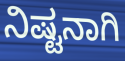
ನಿಷ್ಟನಾಗಿ